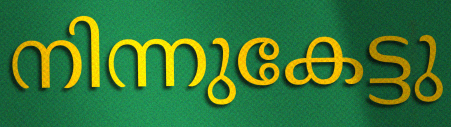
നിന്നുകേട്ടു